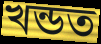
খন্ডত